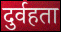
दुर्वहता